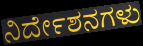
ನಿರ್ದೇಶನಗಳು